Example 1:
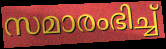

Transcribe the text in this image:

സമാരംഭിച്ച്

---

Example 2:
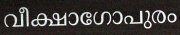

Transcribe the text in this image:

വീക്ഷാഗോപുരം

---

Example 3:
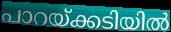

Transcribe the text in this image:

പാറയ്ക്കടിയിൽ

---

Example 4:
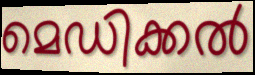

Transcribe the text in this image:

മെഡിക്കൽ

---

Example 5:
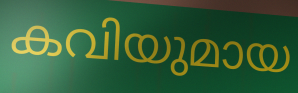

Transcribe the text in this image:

കവിയുമായ